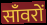
साँवरों